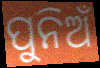
ପୁନିଅଁ